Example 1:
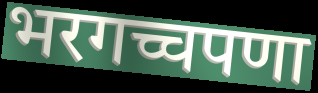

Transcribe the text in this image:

भरगच्चपणा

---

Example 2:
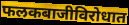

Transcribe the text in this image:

फलकबाजीविरोधात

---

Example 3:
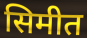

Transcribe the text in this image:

सिमीत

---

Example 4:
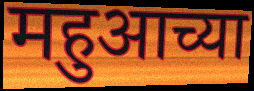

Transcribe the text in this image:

महुआच्या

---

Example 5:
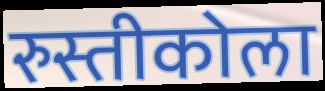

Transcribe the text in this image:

रुस्तीकोला